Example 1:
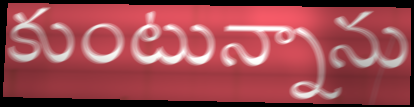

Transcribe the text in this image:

కుంటున్నాను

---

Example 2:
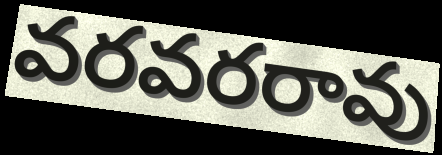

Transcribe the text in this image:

వరవరరావు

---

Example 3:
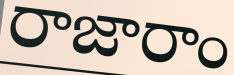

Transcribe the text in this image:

రాజారాం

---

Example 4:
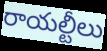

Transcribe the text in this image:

రాయల్టీలు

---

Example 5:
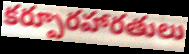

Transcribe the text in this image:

కర్పూరహారతులు